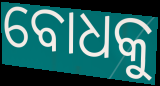
ବୋଧକୁ